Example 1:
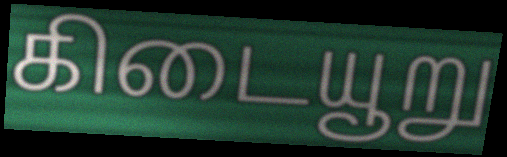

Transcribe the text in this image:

கிடையூறு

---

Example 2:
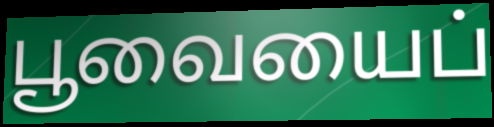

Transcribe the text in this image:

பூவையைப்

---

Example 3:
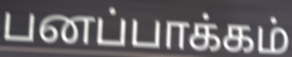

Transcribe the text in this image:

பனப்பாக்கம்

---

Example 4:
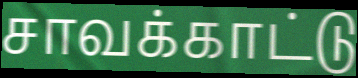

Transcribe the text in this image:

சாவக்காட்டு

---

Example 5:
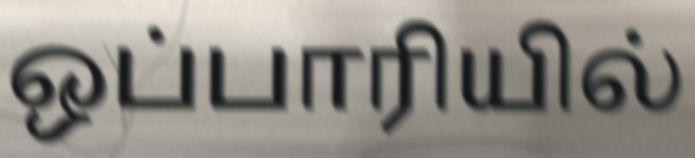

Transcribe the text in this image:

ஒப்பாரியில்